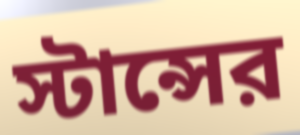
স্টান্সের